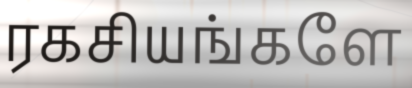
ரகசியங்களே